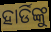
ହାର୍ଡିଙ୍କୁ